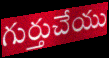
గుర్తుచేయు